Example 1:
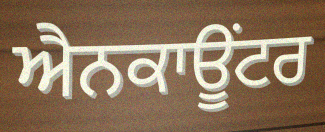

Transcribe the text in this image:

ਐਨਕਾਊਂਟਰ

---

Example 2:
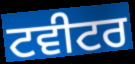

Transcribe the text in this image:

ਟਵੀਟਰ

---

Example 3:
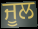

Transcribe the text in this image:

ਜੂਲ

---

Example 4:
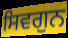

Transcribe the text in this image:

ਸਿਵਗੁਨ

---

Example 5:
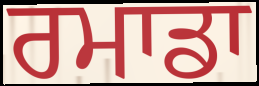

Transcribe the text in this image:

ਰਮਾਡਾ